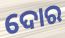
ଦୋର